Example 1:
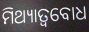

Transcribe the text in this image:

ମିଥ୍ୟାତ୍ୱବୋଧ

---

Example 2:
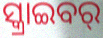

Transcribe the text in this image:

ସ୍କ୍ରାଇବର୍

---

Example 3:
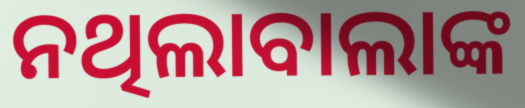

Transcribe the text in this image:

ନଥିଲାବାଲାଙ୍କ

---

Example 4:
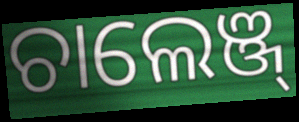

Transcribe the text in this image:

ଚାଲେଞ୍ଜ୍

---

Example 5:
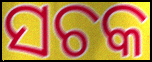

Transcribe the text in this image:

ସଚକ